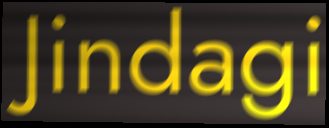
Jindagi